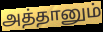
அத்தானும்